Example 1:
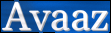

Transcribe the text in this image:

Avaaz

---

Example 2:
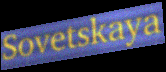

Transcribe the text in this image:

Sovetskaya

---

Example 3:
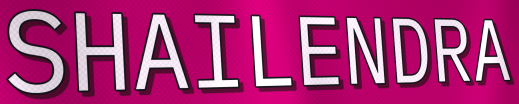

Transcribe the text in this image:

SHAILENDRA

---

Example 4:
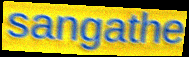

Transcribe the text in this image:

sangathe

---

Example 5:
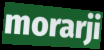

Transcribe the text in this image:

morarji